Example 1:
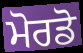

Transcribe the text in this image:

ਮੋਰਡੋ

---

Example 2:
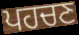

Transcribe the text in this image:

ਪਹਚਣ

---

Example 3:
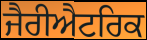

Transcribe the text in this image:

ਜੈਰੀਐਟਰਿਕ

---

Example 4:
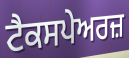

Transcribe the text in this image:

ਟੈਕਸਪੇਅਰਜ਼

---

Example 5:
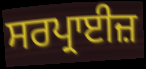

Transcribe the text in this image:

ਸਰਪ੍ਰਾਈਜ਼